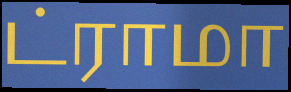
ட்ராமா